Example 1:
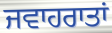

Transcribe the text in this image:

ਜਵਾਹਰਾਤਾਂ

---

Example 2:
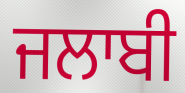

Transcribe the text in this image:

ਜਲਾਬੀ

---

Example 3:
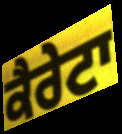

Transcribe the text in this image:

ਕੈਰੇਟਾ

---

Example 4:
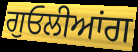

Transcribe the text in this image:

ਗੁਓਲੀਆਂਗ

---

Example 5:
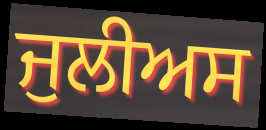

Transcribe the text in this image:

ਜੁਲੀਅਸ